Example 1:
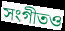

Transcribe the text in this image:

সংগীতও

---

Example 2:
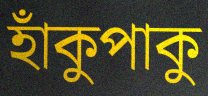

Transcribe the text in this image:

হাঁকুপাকু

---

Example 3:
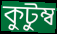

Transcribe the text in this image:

কুটুম্ব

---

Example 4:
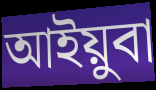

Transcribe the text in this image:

আইয়ুবা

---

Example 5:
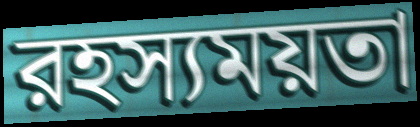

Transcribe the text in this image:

রহস্যময়তা